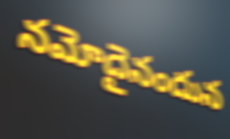
నమోదైనందున